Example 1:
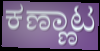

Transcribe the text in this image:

ಕಣ್ಣಾಟ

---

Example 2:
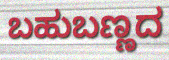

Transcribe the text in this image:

ಬಹುಬಣ್ಣದ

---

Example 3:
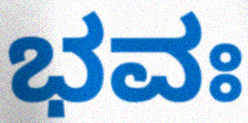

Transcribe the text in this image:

ಭವಃ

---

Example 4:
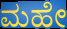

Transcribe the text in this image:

ಮಹೇ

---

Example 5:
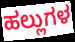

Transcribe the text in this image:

ಹಲ್ಲುಗಳ